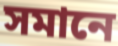
সমানে